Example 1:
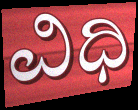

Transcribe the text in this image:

ವಿಧಿ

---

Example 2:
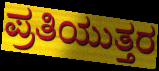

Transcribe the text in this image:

ಪ್ರತಿಯುತ್ತರ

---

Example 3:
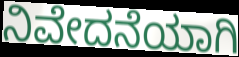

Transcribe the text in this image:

ನಿವೇದನೆಯಾಗಿ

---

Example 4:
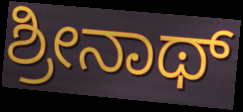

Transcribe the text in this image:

ಶ್ರೀನಾಥ್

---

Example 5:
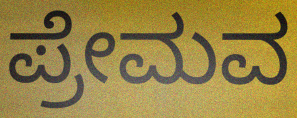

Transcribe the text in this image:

ಪ್ರೇಮವ